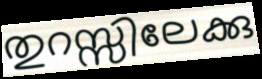
തുറസ്സിലേക്കു